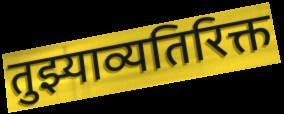
तुझ्याव्यतिरिक्त